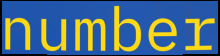
number